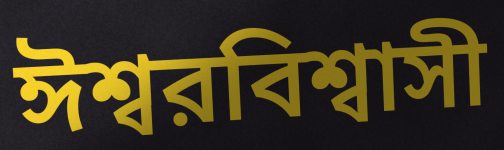
ঈশ্বরবিশ্বাসী